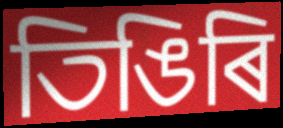
তিঙিৰি